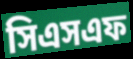
সিএসএফ